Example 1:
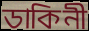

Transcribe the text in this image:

ডাকিনী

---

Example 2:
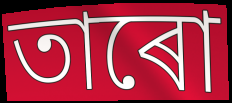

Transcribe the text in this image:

তাৰো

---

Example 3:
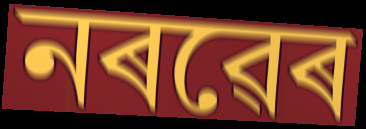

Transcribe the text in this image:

নৰৱেৰ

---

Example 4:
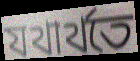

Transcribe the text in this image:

যথাৰ্থতে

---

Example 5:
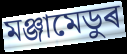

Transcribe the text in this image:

মঞ্জামেডুৰ